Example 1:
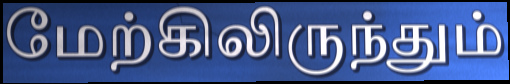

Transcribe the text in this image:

மேற்கிலிருந்தும்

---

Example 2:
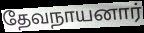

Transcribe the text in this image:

தேவநாயனார்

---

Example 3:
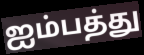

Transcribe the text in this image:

ஐம்பத்து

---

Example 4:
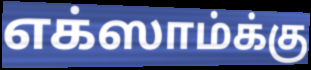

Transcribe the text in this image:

எக்ஸாம்க்கு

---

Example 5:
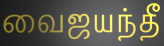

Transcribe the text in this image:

வைஜயந்தீ